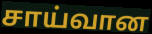
சாய்வான